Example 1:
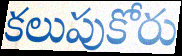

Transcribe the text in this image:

కలుపుకోరు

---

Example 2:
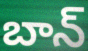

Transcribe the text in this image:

బాన్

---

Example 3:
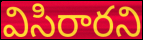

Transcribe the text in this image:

విసిరారని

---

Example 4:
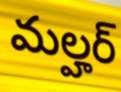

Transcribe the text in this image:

మల్హర్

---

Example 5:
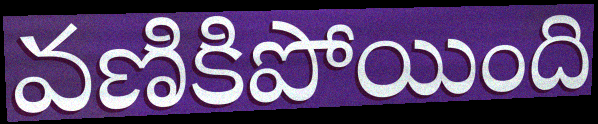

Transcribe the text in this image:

వణికిపోయింది